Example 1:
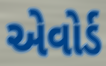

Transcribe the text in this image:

એવોર્ડ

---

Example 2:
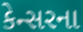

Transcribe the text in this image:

કેન્સરના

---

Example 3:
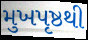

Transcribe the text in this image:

મુખપૃષ્ઠથી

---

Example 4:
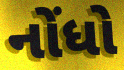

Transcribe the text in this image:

નોંધો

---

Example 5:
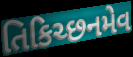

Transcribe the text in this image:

તિકિચ્છનમેવ